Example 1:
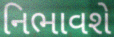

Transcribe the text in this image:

નિભાવશે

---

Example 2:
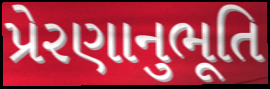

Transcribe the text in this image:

પ્રેરણાનુભૂતિ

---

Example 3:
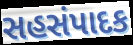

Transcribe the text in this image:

સહસંપાદક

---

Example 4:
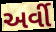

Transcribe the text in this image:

અર્વી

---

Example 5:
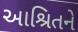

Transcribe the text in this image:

આશ્રિતને